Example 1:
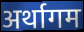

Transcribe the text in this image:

अर्थागम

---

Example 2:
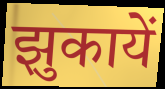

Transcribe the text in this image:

झुकायें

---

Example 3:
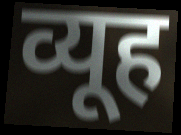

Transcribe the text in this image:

व्यूह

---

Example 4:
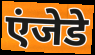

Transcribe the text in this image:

एंजेडे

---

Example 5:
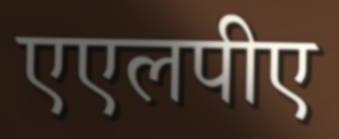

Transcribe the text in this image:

एएलपीए